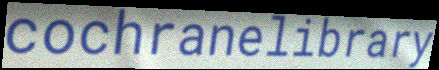
cochranelibrary